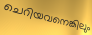
ചെറിയവനെങ്കിലും